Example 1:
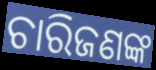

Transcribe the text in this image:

ଚାରିଜଣଙ୍କ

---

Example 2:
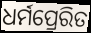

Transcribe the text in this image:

ଧର୍ମପ୍ରେରିତ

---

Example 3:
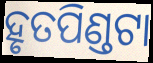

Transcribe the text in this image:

ହୃତପିଣ୍ଡଟା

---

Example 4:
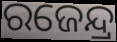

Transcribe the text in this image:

ରଜେନ୍ଦ୍ର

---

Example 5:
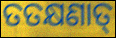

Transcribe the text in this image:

ତତକ୍ଷଣାତ୍